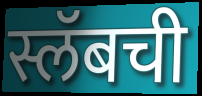
स्लॅबची